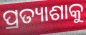
ପ୍ରତ୍ୟାଶାକୁ